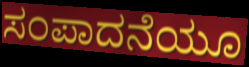
ಸಂಪಾದನೆಯೂ